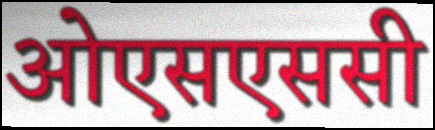
ओएसएससी